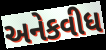
અનેકવીધ